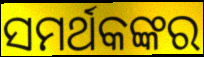
ସମର୍ଥକଙ୍କର